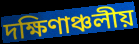
দক্ষিণাঞ্চলীয়